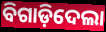
ବିଗାଡ଼ିଦେଲା